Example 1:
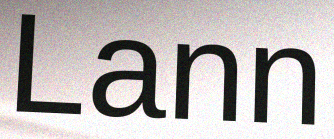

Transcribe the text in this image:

Lann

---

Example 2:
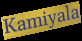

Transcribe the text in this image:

Kamiyala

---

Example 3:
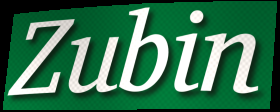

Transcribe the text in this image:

Zubin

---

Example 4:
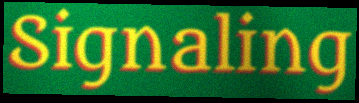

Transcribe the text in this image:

Signaling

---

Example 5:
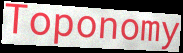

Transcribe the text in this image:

Toponomy